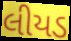
લીયડ